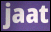
jaat